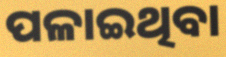
ପଳାଇଥିବା